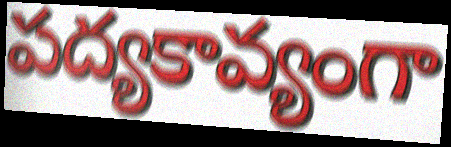
పద్యకావ్యంగా